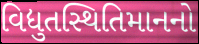
વિદ્યુતસ્થિતિમાનનો